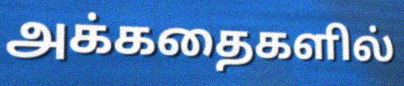
அக்கதைகளில்